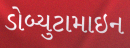
ડોબ્યુટામાઇન